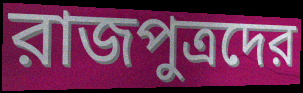
রাজপুত্রদের